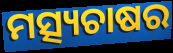
ମତ୍ସ୍ୟଚାଷର